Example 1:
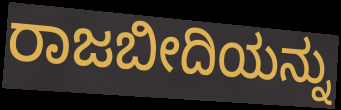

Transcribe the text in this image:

ರಾಜಬೀದಿಯನ್ನು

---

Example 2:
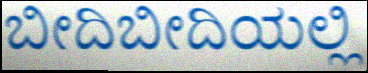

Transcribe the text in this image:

ಬೀದಿಬೀದಿಯಲ್ಲಿ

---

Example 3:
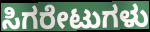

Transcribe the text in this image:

ಸಿಗರೇಟುಗಳು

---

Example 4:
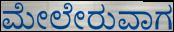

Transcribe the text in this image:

ಮೇಲೇರುವಾಗ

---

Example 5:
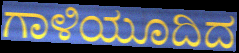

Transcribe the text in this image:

ಗಾಳಿಯೂದಿದ